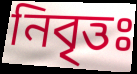
নিবৃত্তঃ